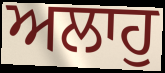
ਅਲਾਹੁ